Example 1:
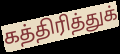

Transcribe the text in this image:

கத்திரித்துக்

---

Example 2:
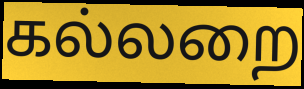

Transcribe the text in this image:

கல்லறை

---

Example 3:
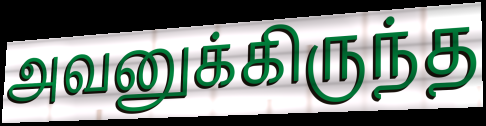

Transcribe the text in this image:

அவனுக்கிருந்த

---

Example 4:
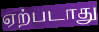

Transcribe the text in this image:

ஏற்படாது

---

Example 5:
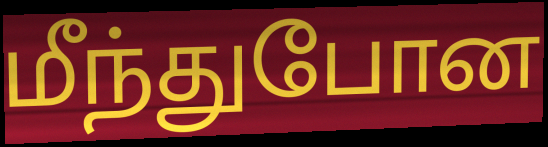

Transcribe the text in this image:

மீந்துபோன